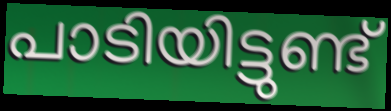
പാടിയിട്ടുണ്ട്